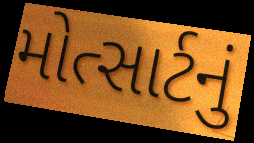
મોત્સાર્ટનું